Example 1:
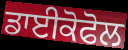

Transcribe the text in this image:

ਡਾਈਕੋਫੋਲ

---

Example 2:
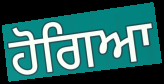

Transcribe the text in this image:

ਹੋਗਿਆ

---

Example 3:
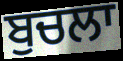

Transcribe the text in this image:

ਬੁਚਲਾ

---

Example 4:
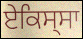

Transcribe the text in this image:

ਏਕਿਸ੍ਸਾ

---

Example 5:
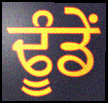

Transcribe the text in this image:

ਢੂੰਡੇਂ